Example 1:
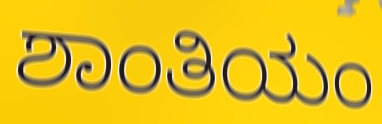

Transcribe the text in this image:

ಶಾಂತಿಯಂ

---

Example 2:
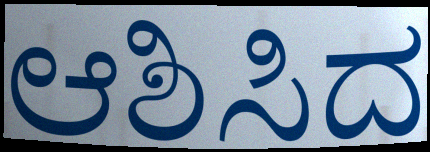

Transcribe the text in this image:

ಆಶಿಸಿದ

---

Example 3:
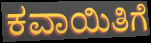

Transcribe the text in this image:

ಕವಾಯಿತಿಗೆ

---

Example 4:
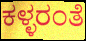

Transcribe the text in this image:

ಕಳ್ಳರಂತೆ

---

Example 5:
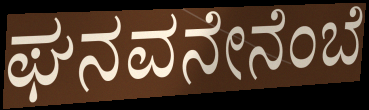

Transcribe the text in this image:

ಘನವನೇನೆಂಬೆ